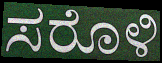
ಸರೊಳಿ